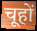
चूहों